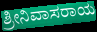
ಶ್ರೀನಿವಾಸರಾಯ